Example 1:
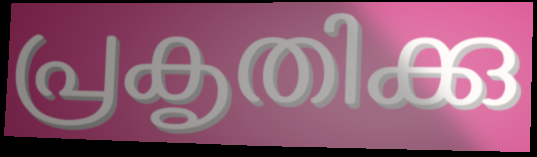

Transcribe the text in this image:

പ്രകൃതിക്കു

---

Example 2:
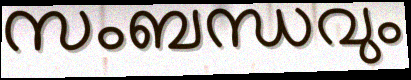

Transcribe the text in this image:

സംബന്ധവും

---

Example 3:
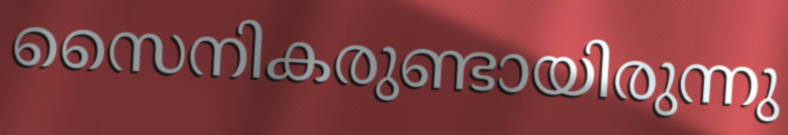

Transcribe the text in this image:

സൈനികരുണ്ടായിരുന്നു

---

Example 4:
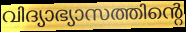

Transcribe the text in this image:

വിദ്യാഭ്യാസത്തിന്റെ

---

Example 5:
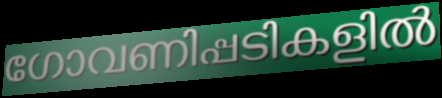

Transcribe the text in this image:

ഗോവണിപ്പടികളിൽ